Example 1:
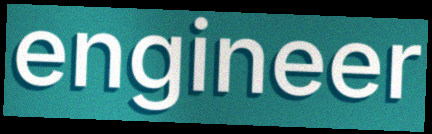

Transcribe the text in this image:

engineer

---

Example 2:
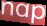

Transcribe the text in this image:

nap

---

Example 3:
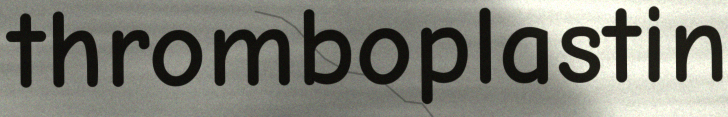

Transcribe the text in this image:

thromboplastin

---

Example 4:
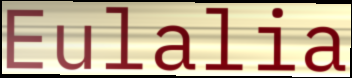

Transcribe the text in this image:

Eulalia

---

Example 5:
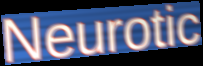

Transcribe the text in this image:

Neurotic